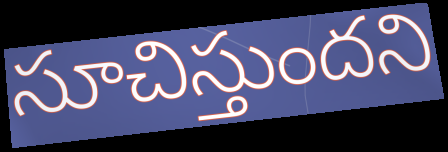
సూచిస్తుందని